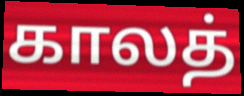
காலத்